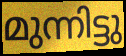
മുന്നിട്ടു